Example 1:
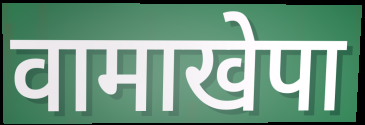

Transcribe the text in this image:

वामाखेपा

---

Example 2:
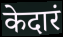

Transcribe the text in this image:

केदारं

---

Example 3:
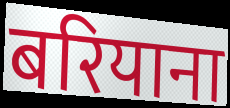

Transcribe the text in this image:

बरियाना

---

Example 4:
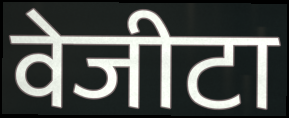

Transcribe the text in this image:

वेजीटा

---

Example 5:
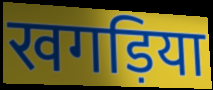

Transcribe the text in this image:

खगड़िया